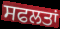
ਸਫਲਤਾਂ